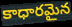
కాధారమైన